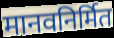
मानवनिर्मित